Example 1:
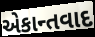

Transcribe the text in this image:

એકાન્તવાદ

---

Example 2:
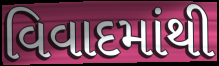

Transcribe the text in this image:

વિવાદમાંથી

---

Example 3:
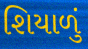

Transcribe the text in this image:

શિયાળું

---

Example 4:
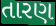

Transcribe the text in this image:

તારણ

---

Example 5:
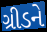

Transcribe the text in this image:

ગ્રીડને